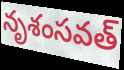
నృశంసవత్